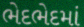
ભેદભેદમાં